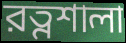
রত্নশালা